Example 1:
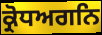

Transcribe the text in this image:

ਕ੍ਰੋਧਅਗਨਿ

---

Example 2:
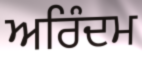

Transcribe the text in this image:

ਅਰਿੰਦਮ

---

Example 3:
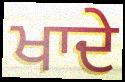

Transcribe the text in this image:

ਖਾਦੇ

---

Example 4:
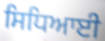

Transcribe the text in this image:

ਸਿਧਿਆਈ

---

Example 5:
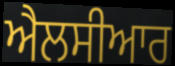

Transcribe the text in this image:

ਐਲਸੀਆਰ